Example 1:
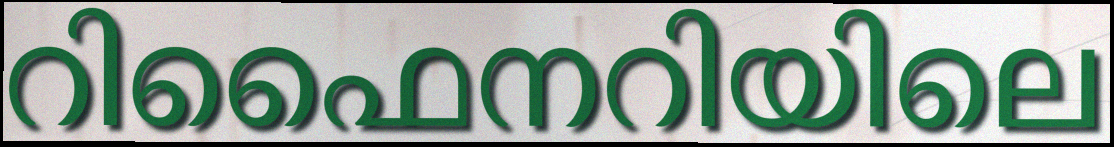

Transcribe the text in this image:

റിഫൈനറിയിലെ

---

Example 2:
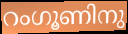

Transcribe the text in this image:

റംഗൂണിനു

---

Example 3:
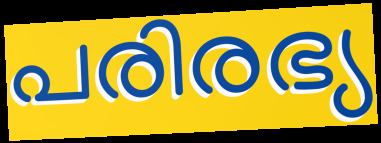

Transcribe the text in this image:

പരിരഭ്യ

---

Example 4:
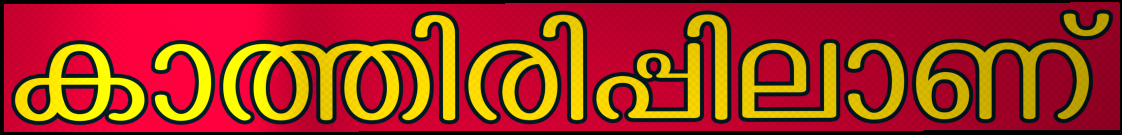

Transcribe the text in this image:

കാത്തിരിപ്പിലാണ്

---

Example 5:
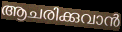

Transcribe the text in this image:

ആചരിക്കുവാൻ